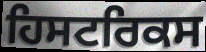
ਹਿਸਟਰਿਕਸ